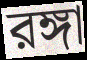
রঙ্গা